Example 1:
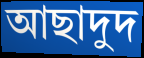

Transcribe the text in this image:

আছাদুদ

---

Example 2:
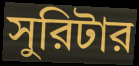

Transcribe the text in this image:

সুরিটার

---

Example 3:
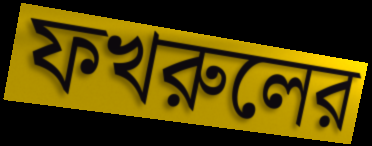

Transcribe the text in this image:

ফখরুলের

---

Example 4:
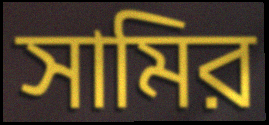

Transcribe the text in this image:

সামির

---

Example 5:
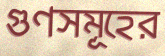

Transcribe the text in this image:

গুণসমূহের